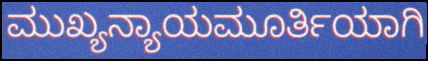
ಮುಖ್ಯನ್ಯಾಯಮೂರ್ತಿಯಾಗಿ